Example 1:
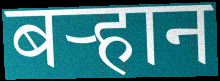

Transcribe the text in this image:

बऱ्हान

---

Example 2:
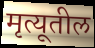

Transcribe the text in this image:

मृत्यूतील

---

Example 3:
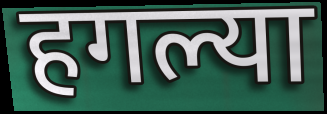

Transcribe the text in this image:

हगल्या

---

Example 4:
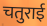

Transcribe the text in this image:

चतुराई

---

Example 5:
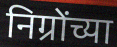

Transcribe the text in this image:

निग्रोंच्या